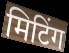
मिटिंग